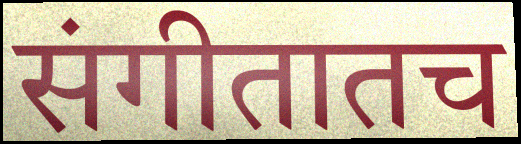
संगीतातच